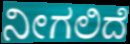
ನೀಗಲಿದೆ